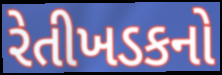
રેતીખડકનો